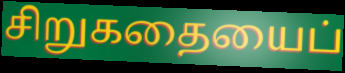
சிறுகதையைப்